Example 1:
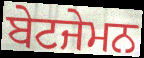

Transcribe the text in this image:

ਬੇਟਜੇਮਨ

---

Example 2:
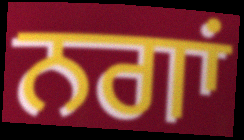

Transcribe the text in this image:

ਨਗਾਂ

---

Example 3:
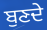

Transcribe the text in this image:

ਬੁਣਦੇ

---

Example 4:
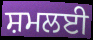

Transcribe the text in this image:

ਸ਼ਮਲਈ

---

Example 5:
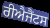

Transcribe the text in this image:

ਰੀਐਜੈਂਟਸ